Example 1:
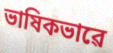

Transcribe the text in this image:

ভাষিকভাৱে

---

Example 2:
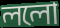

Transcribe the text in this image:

ললো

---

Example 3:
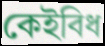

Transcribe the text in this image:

কেইবিধ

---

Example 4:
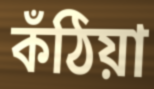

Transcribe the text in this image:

কঁঠিয়া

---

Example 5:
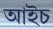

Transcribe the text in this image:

আইচ